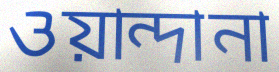
ওয়ান্দানা